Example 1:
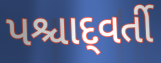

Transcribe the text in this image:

પશ્ચાદ્‌વર્તી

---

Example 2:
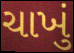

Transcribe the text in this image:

ચાખું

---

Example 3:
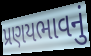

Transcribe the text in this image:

પ્રણયભાવનું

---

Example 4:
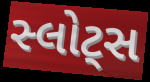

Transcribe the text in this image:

સ્લોટ્સ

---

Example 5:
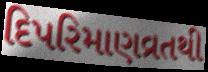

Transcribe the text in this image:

દિપરિમાણવ્રતથી